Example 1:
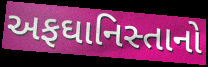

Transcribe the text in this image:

અફઘાનિસ્તાનો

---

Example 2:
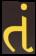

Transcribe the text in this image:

તં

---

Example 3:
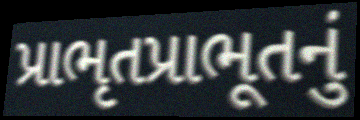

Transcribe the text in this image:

પ્રાભૃતપ્રાભૂતનું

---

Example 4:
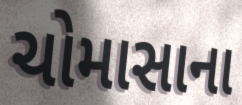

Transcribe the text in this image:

ચોમાસાના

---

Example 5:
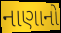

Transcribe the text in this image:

નાણાનો